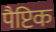
पैप्टिक